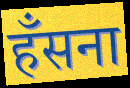
हँसना